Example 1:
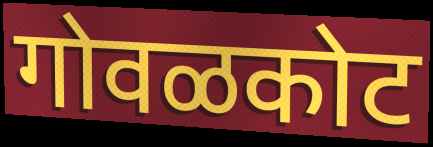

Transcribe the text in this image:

गोवळकोट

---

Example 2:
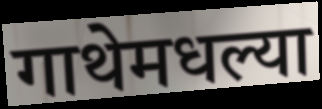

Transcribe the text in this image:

गाथेमधल्या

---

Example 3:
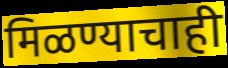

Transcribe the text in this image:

मिळण्याचाही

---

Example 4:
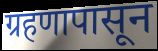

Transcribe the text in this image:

ग्रहणापासून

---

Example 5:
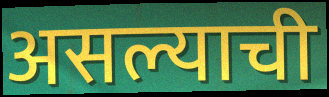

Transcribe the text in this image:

असल्याची